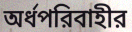
অর্ধপরিবাহীর